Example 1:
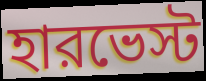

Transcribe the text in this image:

হারভেস্ট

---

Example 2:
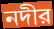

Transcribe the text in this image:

নদীর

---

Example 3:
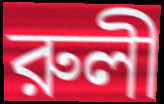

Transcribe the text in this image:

রুলী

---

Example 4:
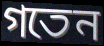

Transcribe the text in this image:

গতেন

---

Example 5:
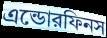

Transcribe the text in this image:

এন্ডোরফিনস